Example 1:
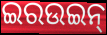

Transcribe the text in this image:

ଇରଉଇନ୍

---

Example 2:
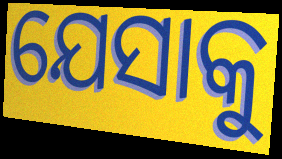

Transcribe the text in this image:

ଯେସାକୁ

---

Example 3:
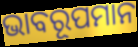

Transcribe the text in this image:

ଭାବରୂପମାନ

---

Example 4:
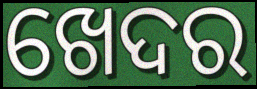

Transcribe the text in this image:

ଖେଦର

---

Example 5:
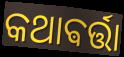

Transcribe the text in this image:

କଥାଵର୍ତ୍ତା